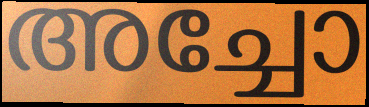
അച്ചോ